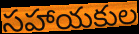
సహాయకుల